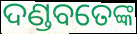
ଦଣ୍ଡବତେଙ୍କ